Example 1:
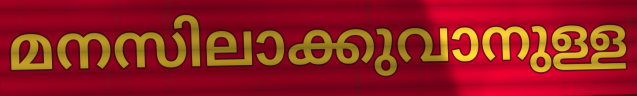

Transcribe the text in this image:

മനസിലാക്കുവാനുള്ള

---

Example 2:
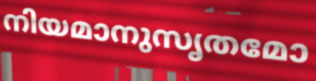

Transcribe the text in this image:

നിയമാനുസൃതമോ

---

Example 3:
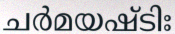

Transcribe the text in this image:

ചർമയഷ്ടിഃ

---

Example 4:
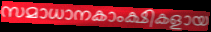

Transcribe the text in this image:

സമാധാനകാംക്ഷികളായ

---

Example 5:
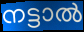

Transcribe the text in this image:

നട്ടാൽ